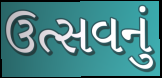
ઉત્સવનું